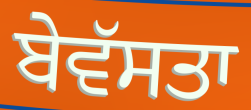
ਬੇਵੱਸਤਾ